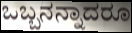
ಒಬ್ಬನನ್ನಾದರೂ